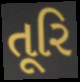
તૂરિ